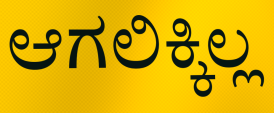
ಆಗಲಿಕ್ಕಿಲ್ಲ